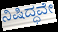
ನಿಷಿದ್ಧವೇ